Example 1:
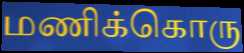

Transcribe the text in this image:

மணிக்கொரு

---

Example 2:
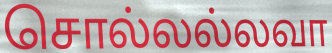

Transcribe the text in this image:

சொல்லல்லவா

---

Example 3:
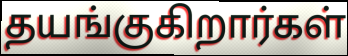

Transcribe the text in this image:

தயங்குகிறார்கள்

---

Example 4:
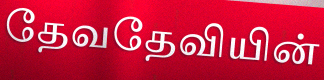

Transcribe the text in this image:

தேவதேவியின்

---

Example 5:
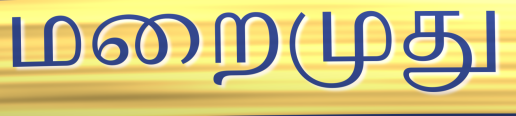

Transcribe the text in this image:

மறைமுது